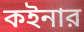
কইনার